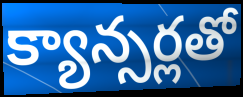
క్యాన్సర్లతో